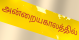
அன்றையகாலத்தில்